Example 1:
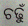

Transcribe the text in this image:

ଚଢୁଁ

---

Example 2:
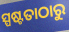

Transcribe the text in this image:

ସ୍ପଷ୍ଟତାଠାରୁ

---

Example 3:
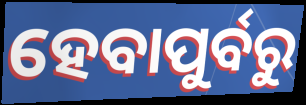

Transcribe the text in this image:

ହେବାପୁର୍ବରୁ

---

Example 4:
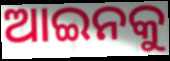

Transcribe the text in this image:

ଆଇନକୁ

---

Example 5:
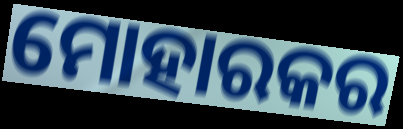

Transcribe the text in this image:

ମୋହାରକର